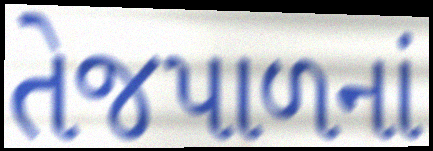
તેજપાળનાં